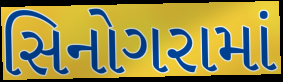
સિનોગરામાં